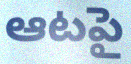
ఆటపై